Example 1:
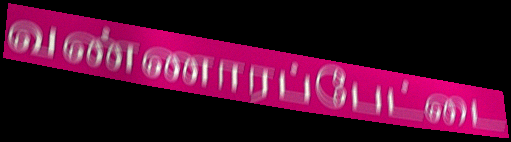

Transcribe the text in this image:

வண்ணாரப்பேட்டை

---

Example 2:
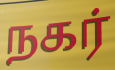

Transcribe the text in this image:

நகர்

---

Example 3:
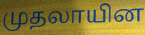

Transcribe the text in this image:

முதலாயின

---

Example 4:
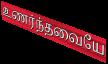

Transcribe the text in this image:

உணர்ந்தவையே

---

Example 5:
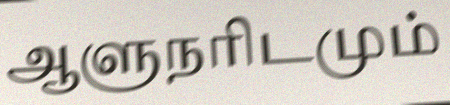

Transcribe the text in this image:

ஆளுநரிடமும்